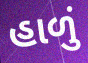
હાળું